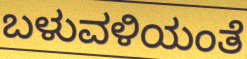
ಬಳುವಳಿಯಂತೆ